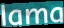
lama